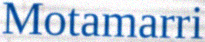
Motamarri